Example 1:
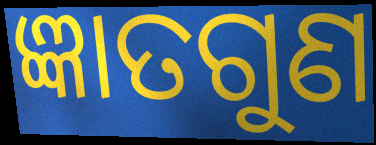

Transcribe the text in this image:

ଜ୍ଞାତଗୁଣ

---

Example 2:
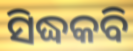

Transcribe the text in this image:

ସିଦ୍ଧକବି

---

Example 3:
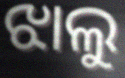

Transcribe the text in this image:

ଝାଲୁ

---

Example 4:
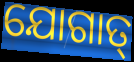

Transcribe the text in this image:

ଯୋଗାତ୍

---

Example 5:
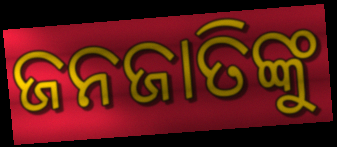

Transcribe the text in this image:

ଜନଜାତିଙ୍କୁ